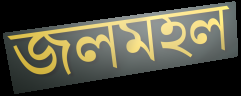
জলমহল